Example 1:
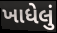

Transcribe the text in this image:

ખાધેલું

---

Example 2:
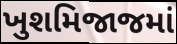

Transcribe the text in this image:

ખુશમિજાજમાં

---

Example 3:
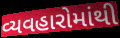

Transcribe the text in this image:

વ્યવહારોમાંથી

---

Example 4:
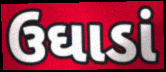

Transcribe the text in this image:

ઉઘાડાં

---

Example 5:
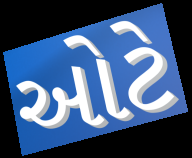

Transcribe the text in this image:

ઓટે